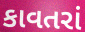
કાવતરાં